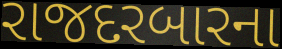
રાજદરબારના